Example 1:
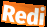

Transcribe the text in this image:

Redi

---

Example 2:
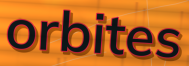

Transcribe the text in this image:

orbites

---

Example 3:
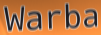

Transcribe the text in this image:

Warba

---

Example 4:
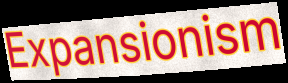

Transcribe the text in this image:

Expansionism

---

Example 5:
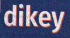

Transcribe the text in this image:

dikey